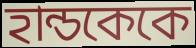
হান্ডকেকে